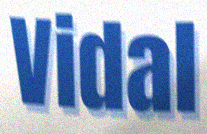
Vidal